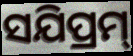
ସଯିପ୍ରମ୍